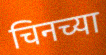
चिनच्या